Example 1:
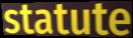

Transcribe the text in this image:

statute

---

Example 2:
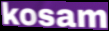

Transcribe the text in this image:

kosam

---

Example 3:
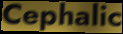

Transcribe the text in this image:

Cephalic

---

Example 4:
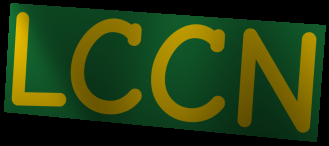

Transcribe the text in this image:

LCCN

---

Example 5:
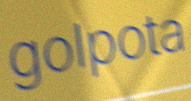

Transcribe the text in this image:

golpota